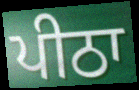
ਪੀਠਾ